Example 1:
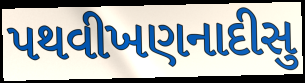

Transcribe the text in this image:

પથવીખણનાદીસુ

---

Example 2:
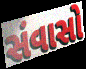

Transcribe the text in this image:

સંવાસો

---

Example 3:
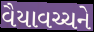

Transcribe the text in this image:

વૈયાવચ્ચને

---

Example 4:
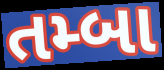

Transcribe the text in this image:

તમ્બા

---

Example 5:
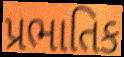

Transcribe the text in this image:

પ્રભાતિક